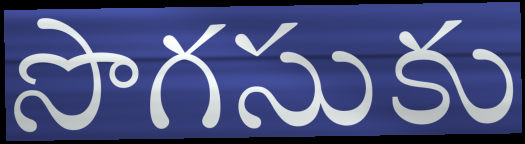
సొగసుకు